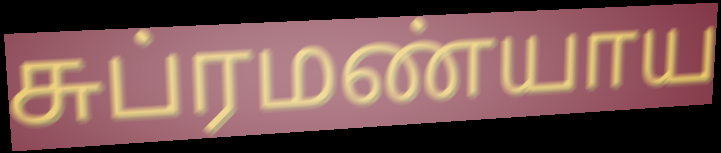
சுப்ரமண்யாய